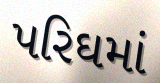
પરિઘમાં